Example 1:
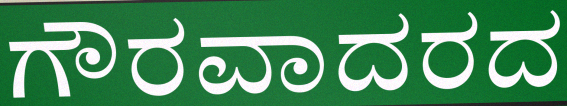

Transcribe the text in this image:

ಗೌರವಾದರದ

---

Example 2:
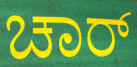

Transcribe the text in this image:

ಚಾರ್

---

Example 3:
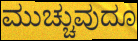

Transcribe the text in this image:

ಮುಚ್ಚುವುದೂ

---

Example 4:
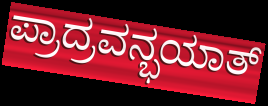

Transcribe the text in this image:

ಪ್ರಾದ್ರವನ್ಭಯಾತ್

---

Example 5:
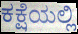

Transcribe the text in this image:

ಕಕ್ಷೆಯಲ್ಲಿ